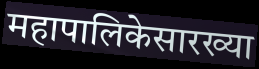
महापालिकेसारख्या